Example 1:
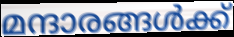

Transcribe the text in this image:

മന്ദാരങ്ങൾക്ക്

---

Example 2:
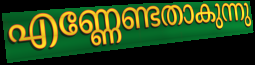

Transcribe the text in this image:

എണ്ണേണ്ടതാകുന്നു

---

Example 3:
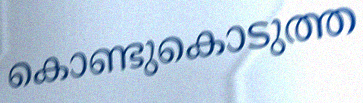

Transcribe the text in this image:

കൊണ്ടുകൊടുത്ത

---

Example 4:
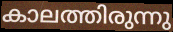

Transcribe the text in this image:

കാലത്തിരുന്നു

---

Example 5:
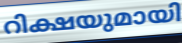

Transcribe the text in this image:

റിക്ഷയുമായി